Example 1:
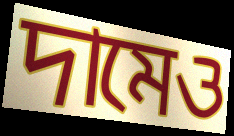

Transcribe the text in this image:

দামেও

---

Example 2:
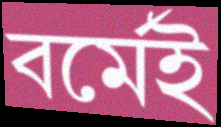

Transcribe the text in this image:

বর্মেই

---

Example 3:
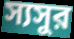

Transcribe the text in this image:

স্যসুর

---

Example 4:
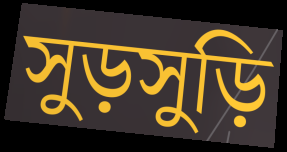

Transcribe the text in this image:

সুড়সুড়ি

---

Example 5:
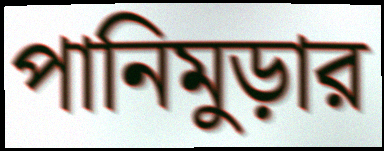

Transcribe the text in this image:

পানিমুড়ার